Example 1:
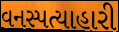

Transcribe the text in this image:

વનસ્પત્યાહારી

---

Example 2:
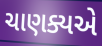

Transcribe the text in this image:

ચાણક્યએ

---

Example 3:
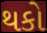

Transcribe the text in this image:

થકો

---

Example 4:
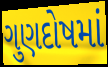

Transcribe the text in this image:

ગુણદોષમાં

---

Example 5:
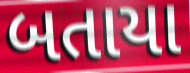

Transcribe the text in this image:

બતાયા